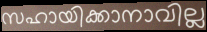
സഹായിക്കാനാവില്ല